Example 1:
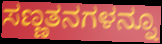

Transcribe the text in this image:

ಸಣ್ಣತನಗಳನ್ನೂ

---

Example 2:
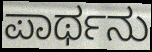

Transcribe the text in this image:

ಪಾರ್ಥನು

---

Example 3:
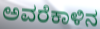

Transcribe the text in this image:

ಅವರೆಕಾಳಿನ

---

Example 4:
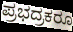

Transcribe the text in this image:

ಪ್ರಭದ್ರಕರೂ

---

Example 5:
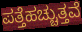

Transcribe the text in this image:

ಪತ್ತೆಹಚ್ಚುತ್ತವೆ